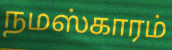
நமஸ்காரம்